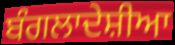
ਬੰਗਲਾਦੇਸ਼ੀਆ